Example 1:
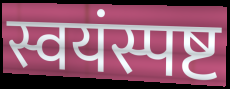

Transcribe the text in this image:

स्वयंस्पष्ट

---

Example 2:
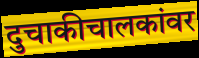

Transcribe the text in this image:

दुचाकीचालकांवर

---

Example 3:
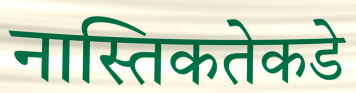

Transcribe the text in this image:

नास्तिकतेकडे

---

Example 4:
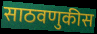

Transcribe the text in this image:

साठवणुकीस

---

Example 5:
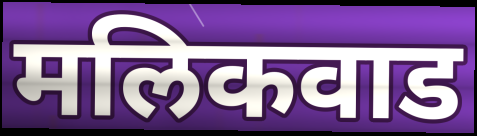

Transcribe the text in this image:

मलिकवाड